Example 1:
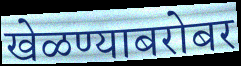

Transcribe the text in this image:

खेळण्याबरोबर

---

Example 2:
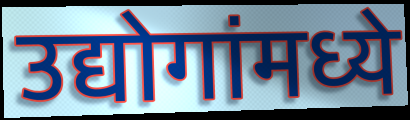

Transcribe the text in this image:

उद्योगांमध्ये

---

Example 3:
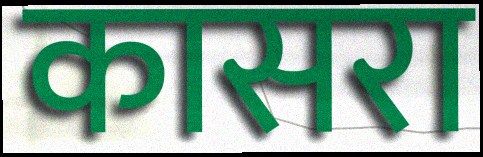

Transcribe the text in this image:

कासरा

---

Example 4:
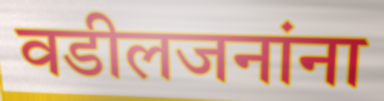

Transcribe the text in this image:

वडीलजनांना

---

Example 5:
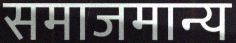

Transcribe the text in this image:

समाजमान्य